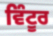
ਵਿੰਟੂਰ